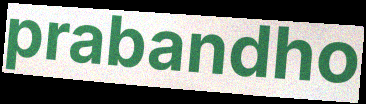
prabandho